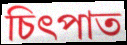
চিৎপাত